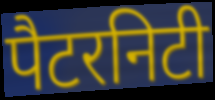
पैटरनिटी